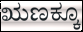
ಋಣಕ್ಕೂ